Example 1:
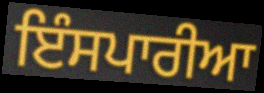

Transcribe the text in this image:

ਇੰਸਪਾਰੀਆ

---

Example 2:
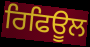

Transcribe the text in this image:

ਰਿਫਿਊਲ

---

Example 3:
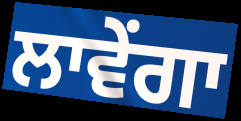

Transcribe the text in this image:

ਲਾਵੇਂਗਾ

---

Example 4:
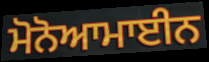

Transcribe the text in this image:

ਮੋਨੋਆਮਾਈਨ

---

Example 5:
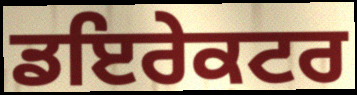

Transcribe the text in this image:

ਡਇਰੇਕਟਰ